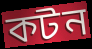
কটন